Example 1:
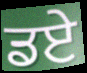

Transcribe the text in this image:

ਡਏ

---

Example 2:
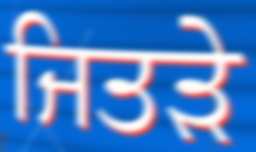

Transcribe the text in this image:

ਜਿਤੜੇ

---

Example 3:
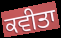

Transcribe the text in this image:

ਕਵੀਤਾ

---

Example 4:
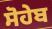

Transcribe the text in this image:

ਸੋਹੇਬ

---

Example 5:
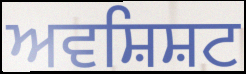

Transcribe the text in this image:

ਅਵਸ਼ਿਸ਼ਟ